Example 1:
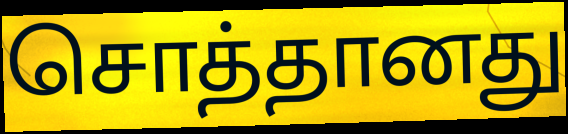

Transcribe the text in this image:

சொத்தானது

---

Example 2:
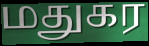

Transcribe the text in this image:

மதுகர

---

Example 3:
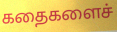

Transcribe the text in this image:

கதைகளைச்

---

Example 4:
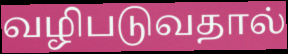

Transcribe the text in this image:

வழிபடுவதால்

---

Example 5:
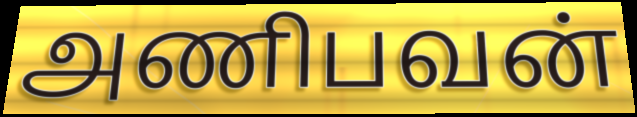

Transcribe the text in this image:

அணிபவன்